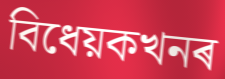
বিধেয়কখনৰ